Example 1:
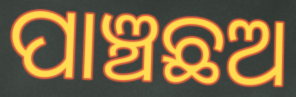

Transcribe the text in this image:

ପାଞ୍ଚଛଅ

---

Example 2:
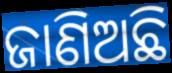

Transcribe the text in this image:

ଜାଣିଅଛି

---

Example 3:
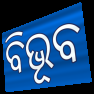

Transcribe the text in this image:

ବିଭୂବ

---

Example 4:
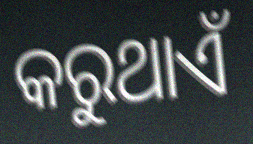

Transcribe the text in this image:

କରୁଥାଏଁ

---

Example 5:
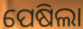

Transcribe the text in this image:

ପେଷିଲା